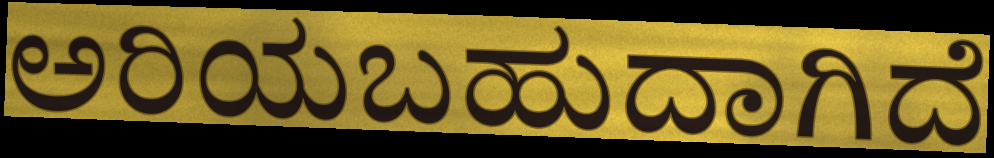
ಅರಿಯಬಹುದಾಗಿದೆ